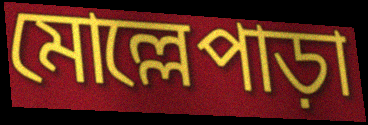
মোল্লেপাড়া